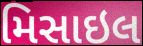
મિસાઇલ